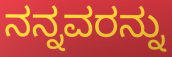
ನನ್ನವರನ್ನು